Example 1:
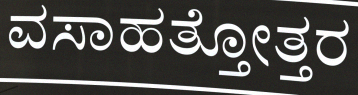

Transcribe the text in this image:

ವಸಾಹತ್ತೋತ್ತರ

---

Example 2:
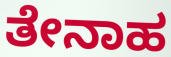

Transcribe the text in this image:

ತೇನಾಹ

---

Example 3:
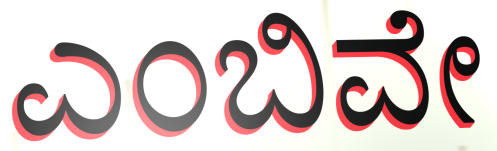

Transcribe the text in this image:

ಎಂಬಿವೇ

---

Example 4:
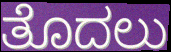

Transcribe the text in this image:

ತೊದಲು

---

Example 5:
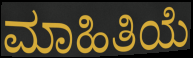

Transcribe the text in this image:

ಮಾಹಿತಿಯೆ